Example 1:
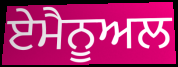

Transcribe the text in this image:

ਏਮੈਨੂਅਲ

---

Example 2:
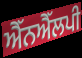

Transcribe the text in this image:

ਐੱਨਐੱਲਪੀ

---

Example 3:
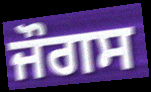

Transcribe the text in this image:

ਜੌਗਸ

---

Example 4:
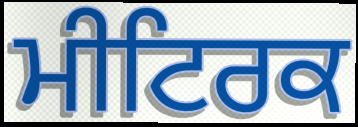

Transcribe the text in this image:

ਮੀਟਿਰਕ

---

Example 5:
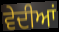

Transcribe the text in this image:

ਵੇਦੀਆਂ